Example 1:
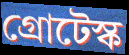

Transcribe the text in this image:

গ্রোটেস্ক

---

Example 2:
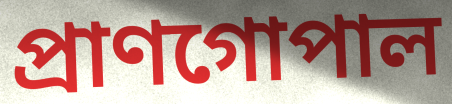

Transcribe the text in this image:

প্রাণগোপাল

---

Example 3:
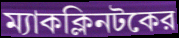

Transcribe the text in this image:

ম্যাকক্লিনটকের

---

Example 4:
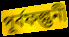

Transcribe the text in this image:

পূর্বফল্গুনী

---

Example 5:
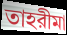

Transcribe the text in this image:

তাহরীমা